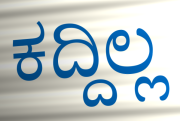
ಕದ್ದಿಲ್ಲ